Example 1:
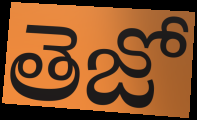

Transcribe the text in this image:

తెజో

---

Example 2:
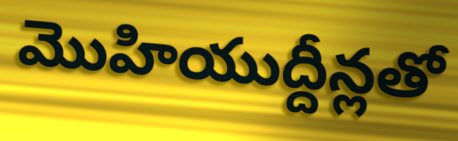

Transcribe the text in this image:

మొహియుద్దీన్లతో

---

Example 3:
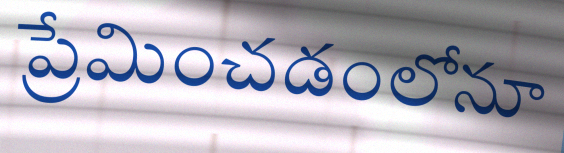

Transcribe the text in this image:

ప్రేమించడంలోనూ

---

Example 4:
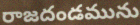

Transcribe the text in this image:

రాజదండమును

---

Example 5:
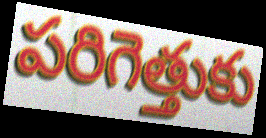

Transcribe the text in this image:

పరిగెత్తుకు